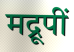
मद्रूपीं